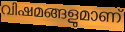
വിഷമങ്ങളുമാണ്